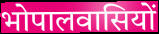
भोपालवासियों